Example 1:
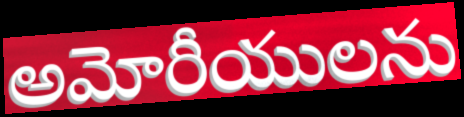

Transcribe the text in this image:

అమోరీయులను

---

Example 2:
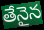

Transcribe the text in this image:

తేనైన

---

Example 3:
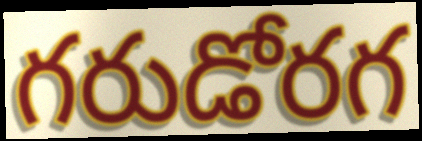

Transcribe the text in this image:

గరుడోరగ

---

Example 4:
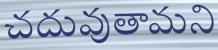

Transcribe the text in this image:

చదువుతామని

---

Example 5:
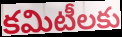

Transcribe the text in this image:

కమిటీలకు